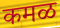
कमळ